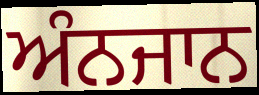
ਅੰਨਜਾਨ